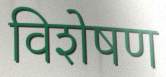
विशेषण